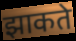
झाकते